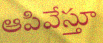
ఆపివేస్తూ